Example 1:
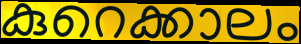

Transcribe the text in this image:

കുറെക്കാലം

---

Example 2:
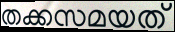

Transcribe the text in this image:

തക്കസമയത്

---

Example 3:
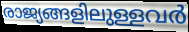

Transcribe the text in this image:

രാജ്യങ്ങളിലുള്ളവർ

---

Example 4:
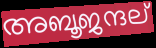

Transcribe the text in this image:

അബൂജന്ദല്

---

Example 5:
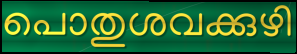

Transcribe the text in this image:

പൊതുശവക്കുഴി